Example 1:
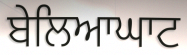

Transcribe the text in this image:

ਬੇਲਿਆਘਾਟ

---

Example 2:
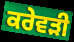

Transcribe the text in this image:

ਕਰੇਵੜੀ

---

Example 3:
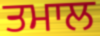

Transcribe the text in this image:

ਤਮਾਲ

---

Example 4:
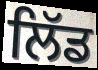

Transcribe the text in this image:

ਲਿੱਡ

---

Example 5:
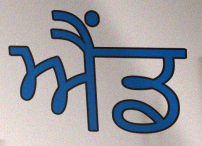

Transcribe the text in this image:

ਐੰਡ